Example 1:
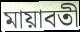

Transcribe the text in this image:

মায়াবতী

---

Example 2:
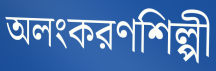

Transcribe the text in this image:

অলংকরণশিল্পী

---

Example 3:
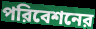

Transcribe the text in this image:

পরিবেশনের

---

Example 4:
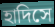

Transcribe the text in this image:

হাদিসে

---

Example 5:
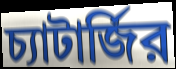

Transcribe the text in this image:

চ্যাটার্জির